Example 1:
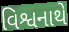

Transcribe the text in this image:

વિશ્વનાથે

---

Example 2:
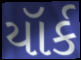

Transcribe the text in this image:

યૉર્ક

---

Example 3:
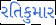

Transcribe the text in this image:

રતિકુમાર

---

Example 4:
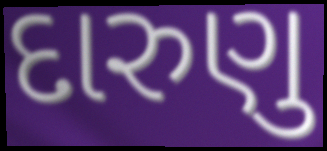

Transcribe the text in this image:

દારુણુ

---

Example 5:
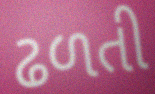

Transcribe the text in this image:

ઢળતી